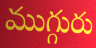
ముగ్గురు